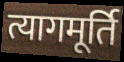
त्यागमूर्ति